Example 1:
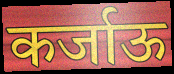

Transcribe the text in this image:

कर्जाऊ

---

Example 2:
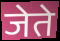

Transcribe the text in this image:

जेते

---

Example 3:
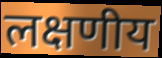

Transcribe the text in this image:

लक्षणीय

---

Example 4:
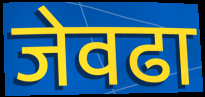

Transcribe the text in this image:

जेवढा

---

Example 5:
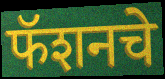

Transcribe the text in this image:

फॅशनचे